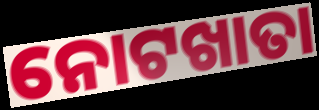
ନୋଟଖାତା